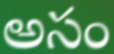
అసం